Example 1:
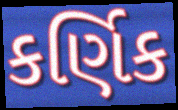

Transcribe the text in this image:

કર્ણિક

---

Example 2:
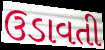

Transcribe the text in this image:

ઉડાવતી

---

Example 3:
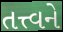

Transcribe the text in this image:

તત્ત્વને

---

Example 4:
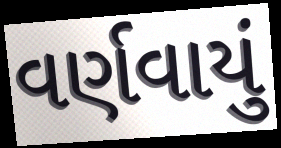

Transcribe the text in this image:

વર્ણવાયું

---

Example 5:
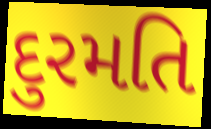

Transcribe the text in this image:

દુરમતિ